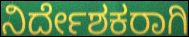
ನಿರ್ದೇಶಕರಾಗಿ